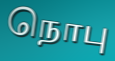
நொபு